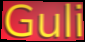
Guli